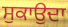
ਸੁਕਾਉਦਾ